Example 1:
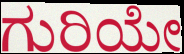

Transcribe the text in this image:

ಗುರಿಯೇ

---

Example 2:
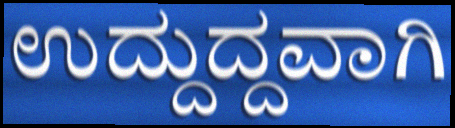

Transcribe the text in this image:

ಉದ್ದುದ್ದವಾಗಿ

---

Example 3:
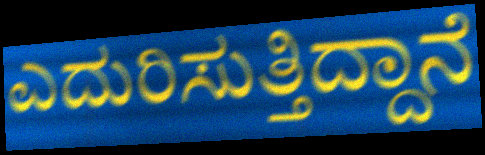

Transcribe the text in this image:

ಎದುರಿಸುತ್ತಿದ್ದಾನೆ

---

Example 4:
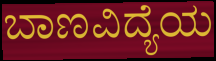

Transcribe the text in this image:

ಬಾಣವಿದ್ಯೆಯ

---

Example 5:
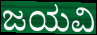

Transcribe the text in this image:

ಜಯವಿ